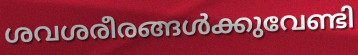
ശവശരീരങ്ങൾക്കുവേണ്ടി